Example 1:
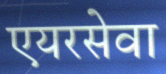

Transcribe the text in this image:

एयरसेवा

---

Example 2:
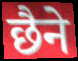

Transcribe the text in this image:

छैने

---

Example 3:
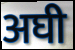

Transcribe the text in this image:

अघी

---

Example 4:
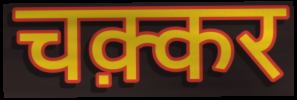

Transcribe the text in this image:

चक़्कर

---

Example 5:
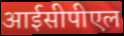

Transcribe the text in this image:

आईसीपीएल